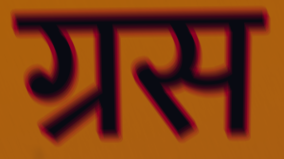
ग्रस